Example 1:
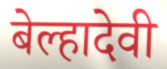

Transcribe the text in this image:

बेल्हादेवी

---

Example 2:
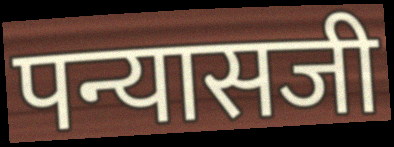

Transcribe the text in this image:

पन्यासजी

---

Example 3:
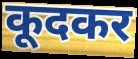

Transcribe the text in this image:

कूदकर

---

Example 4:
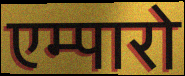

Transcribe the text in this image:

एम्पारो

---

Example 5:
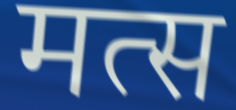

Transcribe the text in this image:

मत्स